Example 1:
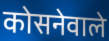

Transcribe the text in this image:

कोसनेवाले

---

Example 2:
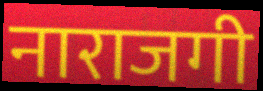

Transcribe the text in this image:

नाराजगी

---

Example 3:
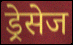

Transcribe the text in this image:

ड्रेसेज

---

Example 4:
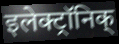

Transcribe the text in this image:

इलेक्ट्रॉनिक्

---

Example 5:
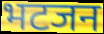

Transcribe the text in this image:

भटजन